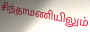
சிந்தாமணியிலும்